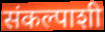
संकल्पाशी